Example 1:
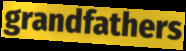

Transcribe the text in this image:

grandfathers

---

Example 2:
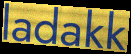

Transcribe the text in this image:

ladakk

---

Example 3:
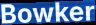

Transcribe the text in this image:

Bowker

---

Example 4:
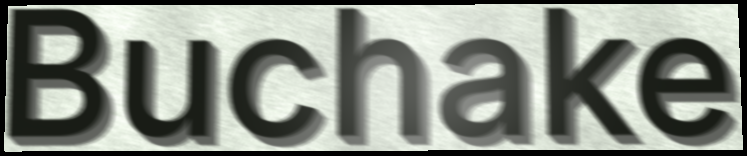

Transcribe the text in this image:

Buchake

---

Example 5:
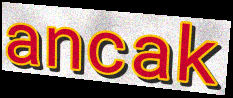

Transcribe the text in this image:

ancak